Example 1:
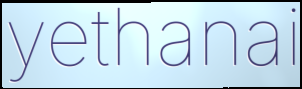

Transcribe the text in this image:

yethanai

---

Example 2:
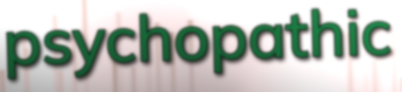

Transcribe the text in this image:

psychopathic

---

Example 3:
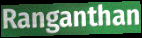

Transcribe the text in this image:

Ranganthan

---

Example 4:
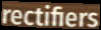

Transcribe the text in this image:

rectifiers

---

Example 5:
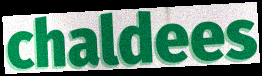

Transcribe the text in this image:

chaldees